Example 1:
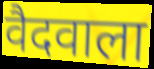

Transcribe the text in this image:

वैदवाला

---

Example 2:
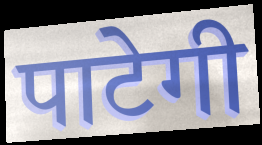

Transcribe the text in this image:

पाटेगी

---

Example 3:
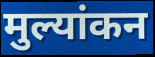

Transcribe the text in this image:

मुल्यांकन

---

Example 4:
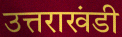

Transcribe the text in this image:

उत्तराखंडी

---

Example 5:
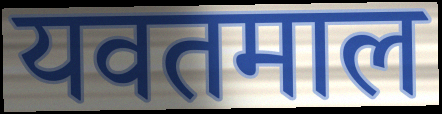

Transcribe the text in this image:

यवतमाल